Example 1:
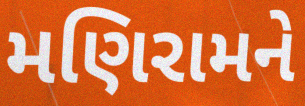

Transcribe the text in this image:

મણિરામને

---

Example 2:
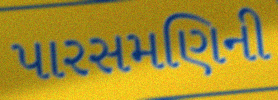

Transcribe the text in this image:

પારસમણિની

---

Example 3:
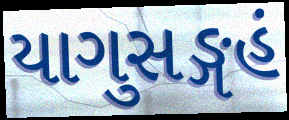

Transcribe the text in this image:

યાગુસઙ્ગહં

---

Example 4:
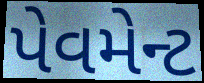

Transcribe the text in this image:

પેવમેન્ટ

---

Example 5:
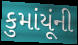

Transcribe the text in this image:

કુમાંયૂંની